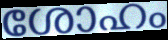
ശോഹം